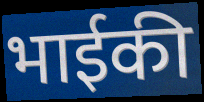
भाईकी